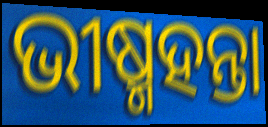
ଭୀଷ୍ମହନ୍ତା